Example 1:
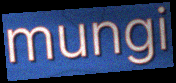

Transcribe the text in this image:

mungi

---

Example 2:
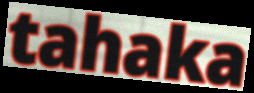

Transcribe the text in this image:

tahaka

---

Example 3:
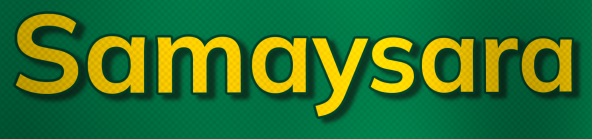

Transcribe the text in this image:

Samaysara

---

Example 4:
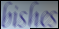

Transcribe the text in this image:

bishes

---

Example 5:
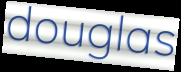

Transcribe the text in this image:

douglas